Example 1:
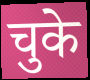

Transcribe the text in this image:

चुके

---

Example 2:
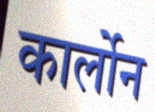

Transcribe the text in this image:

कार्लोन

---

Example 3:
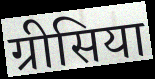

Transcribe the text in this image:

ग्रीसिया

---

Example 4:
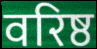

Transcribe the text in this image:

वरिष्ठ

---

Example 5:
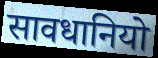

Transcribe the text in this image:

सावधानियो